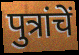
पुत्रांचें